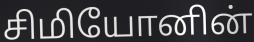
சிமியோனின்